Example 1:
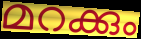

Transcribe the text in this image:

മറക്കും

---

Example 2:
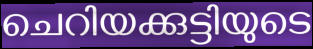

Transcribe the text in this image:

ചെറിയക്കുട്ടിയുടെ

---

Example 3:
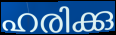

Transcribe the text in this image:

ഹരിക്കു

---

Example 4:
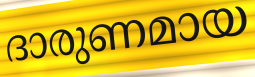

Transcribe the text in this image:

ദാരുണമായ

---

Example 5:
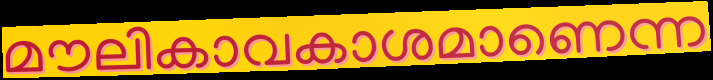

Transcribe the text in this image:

മൗലികാവകാശമാണെന്ന